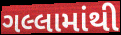
ગલ્લામાંથી